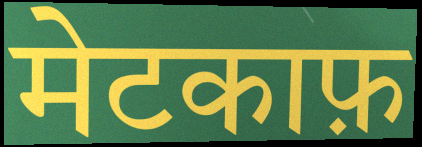
मेटकाफ़